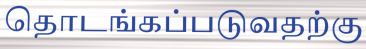
தொடங்கப்படுவதற்கு